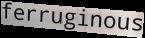
ferruginous